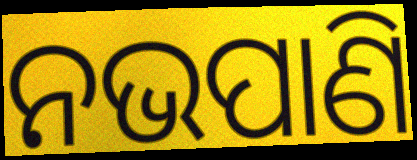
ନଭପାଣି